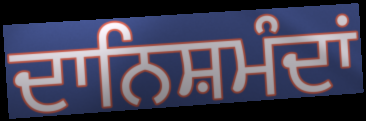
ਦਾਨਿਸ਼ਮੰਦਾਂ